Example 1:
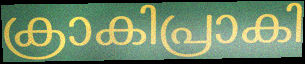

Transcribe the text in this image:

ക്രാകിപ്രാകി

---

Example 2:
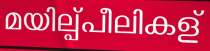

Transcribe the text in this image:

മയില്പ്പീലികള്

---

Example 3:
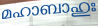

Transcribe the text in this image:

മഹാബാഹുഃ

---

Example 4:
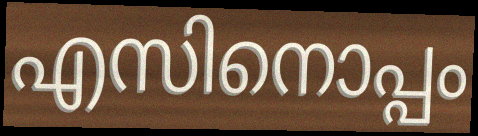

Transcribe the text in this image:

എസിനൊപ്പം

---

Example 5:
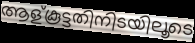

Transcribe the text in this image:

ആള്കൂട്ടതിനിടയിലൂടെ